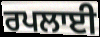
ਰਪਲਾਈ